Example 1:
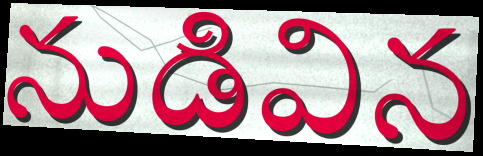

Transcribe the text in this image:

నుడివిన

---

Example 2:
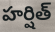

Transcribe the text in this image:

హర్షిత్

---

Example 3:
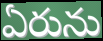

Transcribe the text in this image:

ఏరును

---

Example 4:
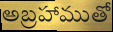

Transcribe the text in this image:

అబ్రహాముతో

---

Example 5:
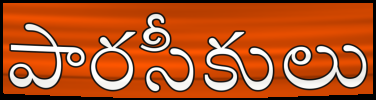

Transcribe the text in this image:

పారసీకులు